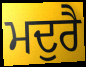
ਮਦੁਰੈ